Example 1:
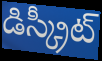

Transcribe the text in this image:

డిస్క్రీట్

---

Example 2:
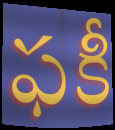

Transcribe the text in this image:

ఫకీ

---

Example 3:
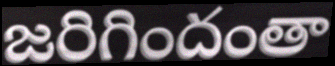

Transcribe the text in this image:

జరిగిందంతా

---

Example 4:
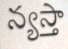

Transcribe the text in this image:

న్యస్తా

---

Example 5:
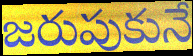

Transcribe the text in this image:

జరుపుకునే